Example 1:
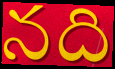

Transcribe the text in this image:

నది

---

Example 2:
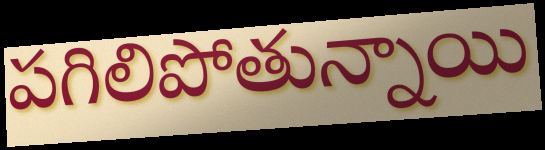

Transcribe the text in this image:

పగిలిపోతున్నాయి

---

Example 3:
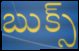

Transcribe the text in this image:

బుక్స్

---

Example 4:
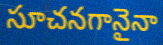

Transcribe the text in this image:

సూచనగానైనా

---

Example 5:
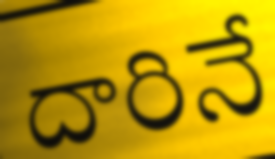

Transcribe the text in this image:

దారినే